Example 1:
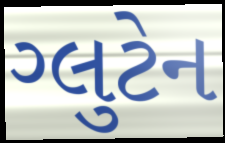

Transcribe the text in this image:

ગ્લુટેન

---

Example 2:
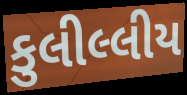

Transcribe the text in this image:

કુલીલ્લીય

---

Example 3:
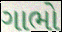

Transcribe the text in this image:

ગાભો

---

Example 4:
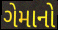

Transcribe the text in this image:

ગેમાનો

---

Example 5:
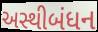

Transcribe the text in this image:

અસ્થીબંધન